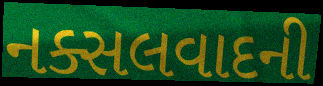
નક્સલવાદની